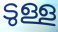
ടുള്ള